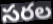
సరల